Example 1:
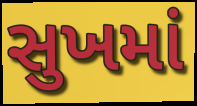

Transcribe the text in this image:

સુખમાં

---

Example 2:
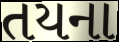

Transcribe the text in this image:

તયના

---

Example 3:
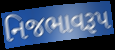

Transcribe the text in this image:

નિજભાવરૂપ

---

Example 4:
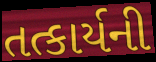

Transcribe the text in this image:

તત્કાર્યની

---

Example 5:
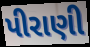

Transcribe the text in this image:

પીરાણી